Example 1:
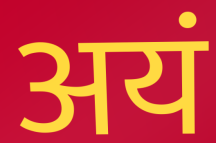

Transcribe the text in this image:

अयं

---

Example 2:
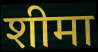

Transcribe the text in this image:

शीमा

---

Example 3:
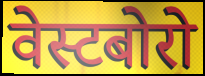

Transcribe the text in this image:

वेस्टबोरो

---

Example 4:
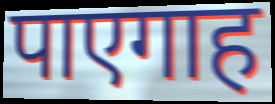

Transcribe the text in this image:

पाएगाह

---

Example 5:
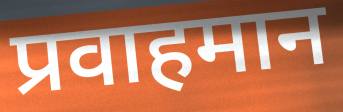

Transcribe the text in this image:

प्रवाहमान